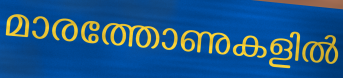
മാരത്തോണുകളിൽ